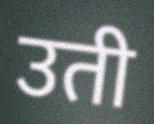
उती